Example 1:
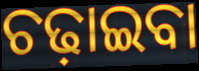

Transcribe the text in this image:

ଚଢ଼ାଇବା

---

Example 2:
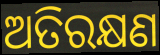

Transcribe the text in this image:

ଅତିରକ୍ଷଣ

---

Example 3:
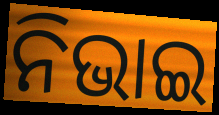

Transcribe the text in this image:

ନିଭାଇ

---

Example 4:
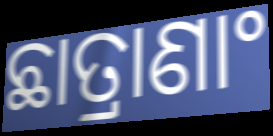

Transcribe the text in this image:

ଛାତ୍ରାଣାଂ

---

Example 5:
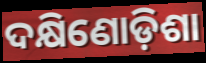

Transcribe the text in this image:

ଦକ୍ଷିଣୋଡ଼ିଶା